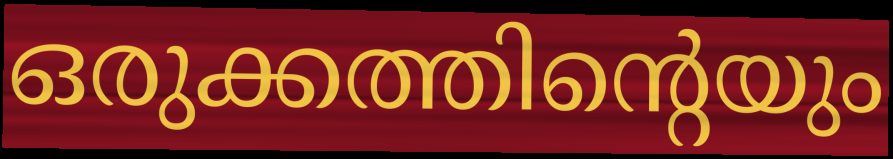
ഒരുക്കത്തിന്റെയും